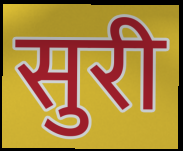
सुरी